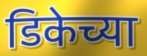
डिकेच्या